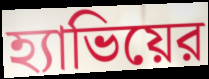
হ্যাভিয়ের